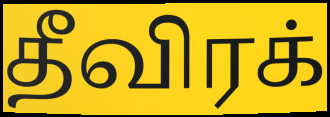
தீவிரக்